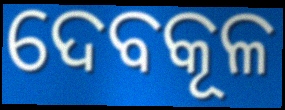
ଦେବକୂଳ